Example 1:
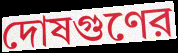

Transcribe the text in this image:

দোষগুণের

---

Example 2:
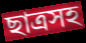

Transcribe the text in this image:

ছাত্রসহ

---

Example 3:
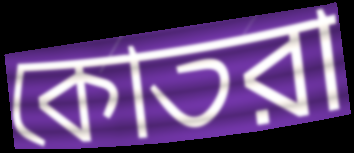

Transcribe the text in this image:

কোতরা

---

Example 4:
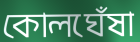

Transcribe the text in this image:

কোলঘেঁষা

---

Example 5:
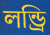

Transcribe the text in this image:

লন্ড্রি